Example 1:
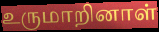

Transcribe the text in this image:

உருமாறினாள்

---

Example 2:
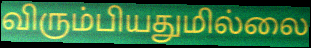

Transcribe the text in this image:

விரும்பியதுமில்லை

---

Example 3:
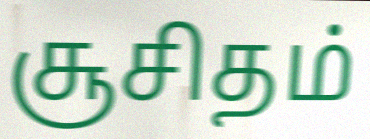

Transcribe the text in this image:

சூசிதம்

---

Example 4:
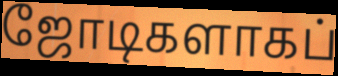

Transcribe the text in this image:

ஜோடிகளாகப்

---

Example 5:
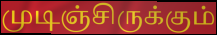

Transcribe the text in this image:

முடிஞ்சிருக்கும்